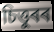
চিত্তুৰৰ